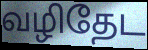
வழிதேட